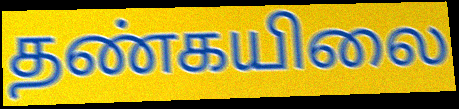
தண்கயிலை